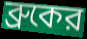
ব্রুকের